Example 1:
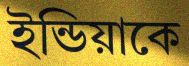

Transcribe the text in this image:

ইন্ডিয়াকে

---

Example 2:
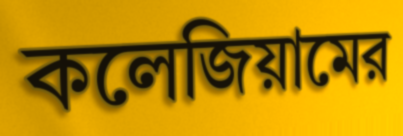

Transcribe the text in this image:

কলেজিয়ামের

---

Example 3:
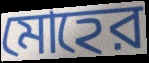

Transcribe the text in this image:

মোহের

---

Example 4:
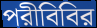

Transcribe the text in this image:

পরীবিবির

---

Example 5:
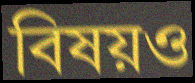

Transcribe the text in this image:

বিষয়ও